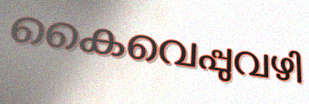
കൈവെപ്പുവഴി